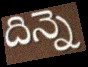
దిన్నె